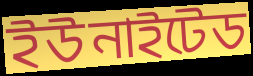
ইউনাইটেড